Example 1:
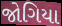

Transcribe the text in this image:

જોગિયા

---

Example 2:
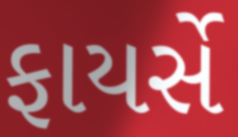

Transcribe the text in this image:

ફાયર્સે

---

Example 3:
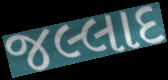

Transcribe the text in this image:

જલ્લાદ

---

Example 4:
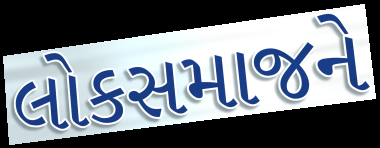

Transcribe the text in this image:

લોકસમાજને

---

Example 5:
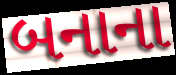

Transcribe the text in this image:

બનાના